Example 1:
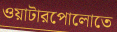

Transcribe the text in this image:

ওয়াটারপোলোতে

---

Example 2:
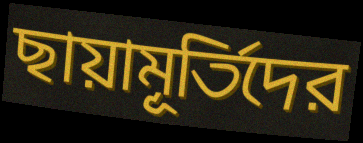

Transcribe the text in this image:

ছায়ামূর্তিদের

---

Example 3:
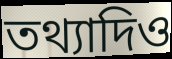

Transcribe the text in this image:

তথ্যাদিও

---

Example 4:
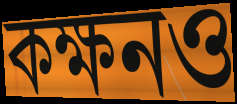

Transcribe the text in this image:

কক্ষনও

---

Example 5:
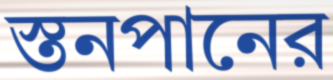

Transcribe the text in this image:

স্তনপানের